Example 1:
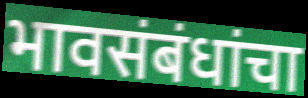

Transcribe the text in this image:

भावसंबंधांचा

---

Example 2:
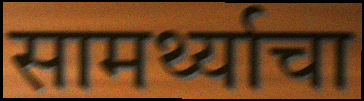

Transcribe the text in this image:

सामर्थ्याचा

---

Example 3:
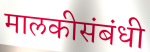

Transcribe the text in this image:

मालकीसंबंधी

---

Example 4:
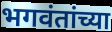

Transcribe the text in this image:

भगवंतांच्या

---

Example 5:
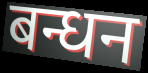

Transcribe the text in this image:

बन्धन